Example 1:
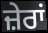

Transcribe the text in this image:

ਜ਼ੇਰਾਂ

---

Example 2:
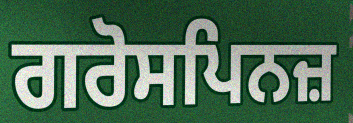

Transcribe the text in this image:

ਗਰੋਸਪਿਨਜ਼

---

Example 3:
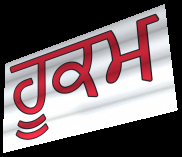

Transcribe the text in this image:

ਹੂਕਮ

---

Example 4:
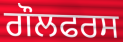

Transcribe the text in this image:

ਗੌਲਫਰਸ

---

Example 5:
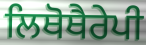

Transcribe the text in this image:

ਲਿਥੋਥੈਰੇਪੀ